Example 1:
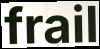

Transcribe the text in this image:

frail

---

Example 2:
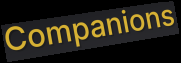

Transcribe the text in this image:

Companions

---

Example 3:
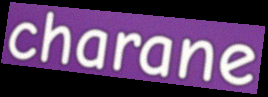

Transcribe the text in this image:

charane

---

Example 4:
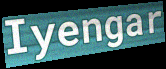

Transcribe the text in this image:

Iyengar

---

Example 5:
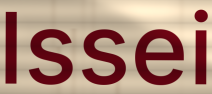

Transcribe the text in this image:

Issei